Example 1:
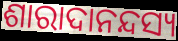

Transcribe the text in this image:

ଶାରାଦାନନ୍ଦସ୍ୟ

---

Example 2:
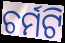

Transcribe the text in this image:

ଚର୍ମଟି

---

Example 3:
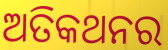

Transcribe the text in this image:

ଅତିକଥନର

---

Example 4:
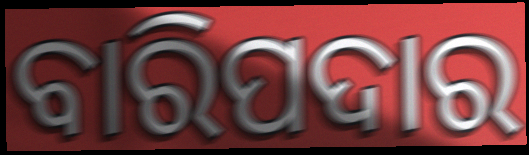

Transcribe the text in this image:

ବାରିପଦାର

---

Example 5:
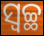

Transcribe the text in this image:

ସ୍ବଚ୍ଛ